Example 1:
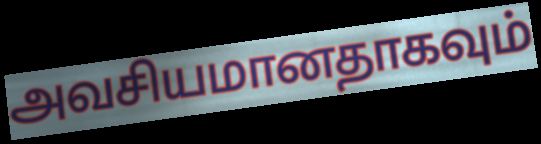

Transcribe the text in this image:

அவசியமானதாகவும்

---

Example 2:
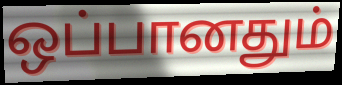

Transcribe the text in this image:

ஒப்பானதும்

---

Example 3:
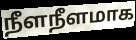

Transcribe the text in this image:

நீளநீளமாக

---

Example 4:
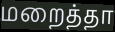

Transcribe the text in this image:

மறைத்தா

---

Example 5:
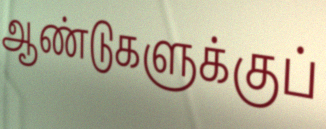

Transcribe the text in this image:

ஆண்டுகளுக்குப்